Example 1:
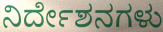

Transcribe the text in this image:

ನಿರ್ದೇಶನಗಳು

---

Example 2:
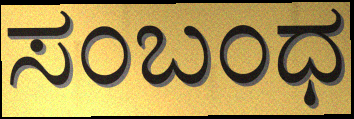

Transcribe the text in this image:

ಸಂಬಂಧ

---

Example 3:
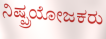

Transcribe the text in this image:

ನಿಷ್ಪ್ರಯೋಜಕರು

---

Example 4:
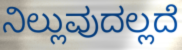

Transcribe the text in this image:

ನಿಲ್ಲುವುದಲ್ಲದೆ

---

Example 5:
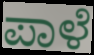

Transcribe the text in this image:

ಪಾಳೆ